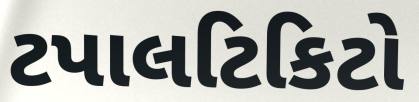
ટપાલટિકિટો